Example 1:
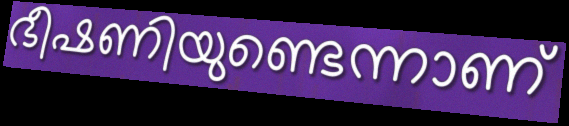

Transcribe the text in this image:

ഭീഷണിയുണ്ടെന്നാണ്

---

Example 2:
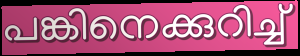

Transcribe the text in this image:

പങ്കിനെക്കുറിച്ച്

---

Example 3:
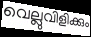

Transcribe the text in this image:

വെല്ലുവിളിക്കും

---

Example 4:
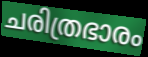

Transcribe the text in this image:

ചരിത്രഭാരം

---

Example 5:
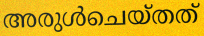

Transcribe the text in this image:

അരുൾചെയ്തത്